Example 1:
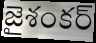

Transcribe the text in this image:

జైశంకర్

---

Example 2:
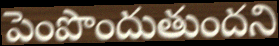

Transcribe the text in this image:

పెంపొందుతుందని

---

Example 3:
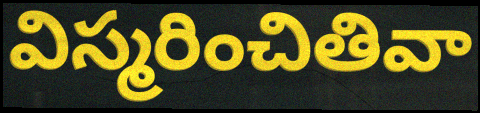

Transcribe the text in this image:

విస్మరించితివా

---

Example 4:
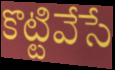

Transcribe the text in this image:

కొట్టివేసే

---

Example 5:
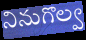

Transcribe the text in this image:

నినుగొల్వ